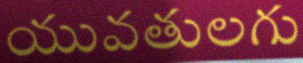
యువతులగు